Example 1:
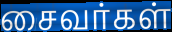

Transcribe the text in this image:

சைவர்கள்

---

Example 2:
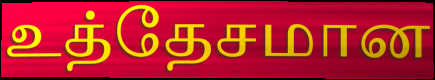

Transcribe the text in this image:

உத்தேசமான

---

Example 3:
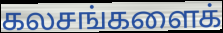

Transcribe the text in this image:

கலசங்களைக்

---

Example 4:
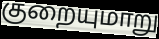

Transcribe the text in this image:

குறையுமாறு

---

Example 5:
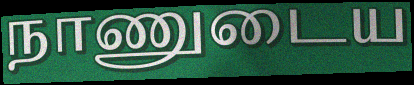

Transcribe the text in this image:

நாணுடைய